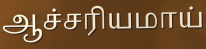
ஆச்சரியமாய்